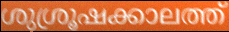
ശുശ്രൂഷക്കാലത്ത്